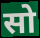
सो